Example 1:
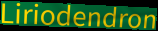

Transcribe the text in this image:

Liriodendron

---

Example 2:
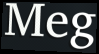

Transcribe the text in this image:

Meg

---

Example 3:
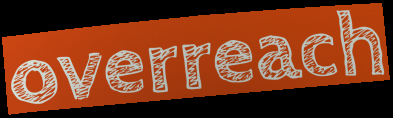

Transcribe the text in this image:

overreach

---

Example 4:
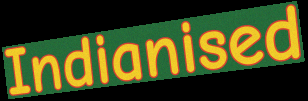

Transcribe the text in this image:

Indianised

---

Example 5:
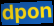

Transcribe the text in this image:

dpon